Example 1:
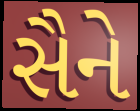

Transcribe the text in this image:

સૈને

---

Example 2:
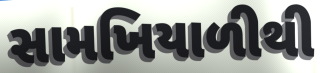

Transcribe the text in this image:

સામખિયાળીથી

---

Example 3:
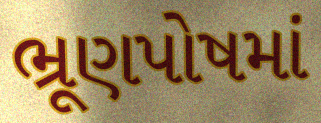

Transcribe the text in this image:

ભ્રૂણપોષમાં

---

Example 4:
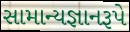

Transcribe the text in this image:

સામાન્યજ્ઞાનરૂપે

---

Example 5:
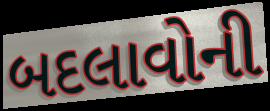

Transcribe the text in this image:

બદલાવોની